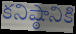
కనిష్ఠానికి